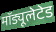
मॉड्यूलेटेड